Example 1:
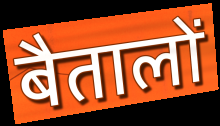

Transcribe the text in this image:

बैतालों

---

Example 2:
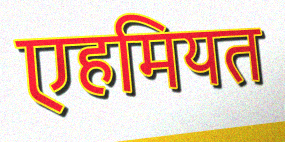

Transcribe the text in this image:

एहमियत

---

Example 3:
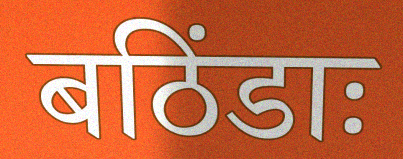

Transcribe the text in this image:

बठिंडाः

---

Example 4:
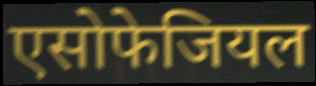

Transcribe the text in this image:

एसोफेजियल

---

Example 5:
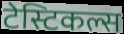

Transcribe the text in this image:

टेस्टिकल्स